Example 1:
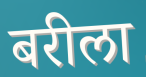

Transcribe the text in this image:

बरीला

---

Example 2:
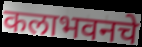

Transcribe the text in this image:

कलाभवनचे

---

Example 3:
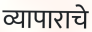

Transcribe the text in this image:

व्यापाराचे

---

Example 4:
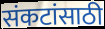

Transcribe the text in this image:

संकटांसाठी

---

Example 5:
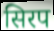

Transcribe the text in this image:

सिरप